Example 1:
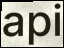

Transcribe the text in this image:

api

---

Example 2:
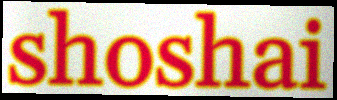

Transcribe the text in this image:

shoshai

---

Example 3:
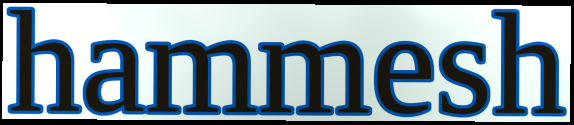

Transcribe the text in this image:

hammesh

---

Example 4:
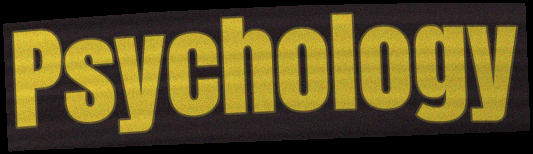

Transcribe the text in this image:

Psychology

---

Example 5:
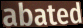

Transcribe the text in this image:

abated